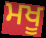
ਮਖੂ